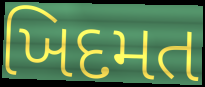
ખિદમત